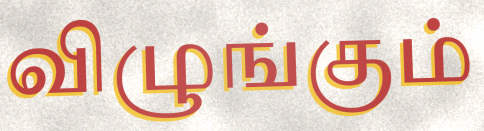
விழுங்கும்